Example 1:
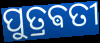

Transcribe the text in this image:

ପୁତ୍ରଵତୀ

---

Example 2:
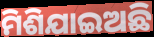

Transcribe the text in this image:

ମିଶିଯାଇଅଛି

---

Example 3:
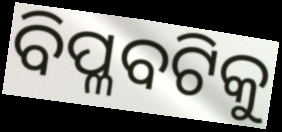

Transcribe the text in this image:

ବିପ୍ଳବଟିକୁ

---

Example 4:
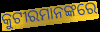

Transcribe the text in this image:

କୁଟୀରମାନଙ୍କରେ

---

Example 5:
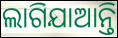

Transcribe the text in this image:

ଲାଗିଯାଆନ୍ତି